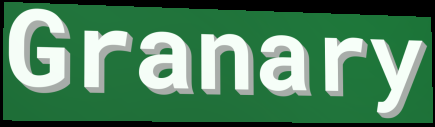
Granary